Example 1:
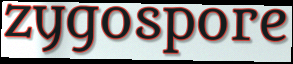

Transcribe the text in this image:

zygospore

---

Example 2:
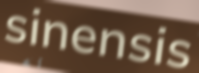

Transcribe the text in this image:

sinensis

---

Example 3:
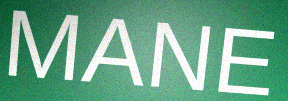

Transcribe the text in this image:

MANE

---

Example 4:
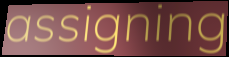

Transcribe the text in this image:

assigning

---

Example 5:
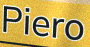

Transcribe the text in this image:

Piero